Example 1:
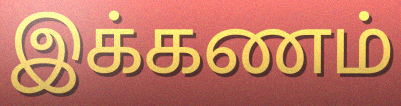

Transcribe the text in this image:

இக்கணம்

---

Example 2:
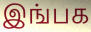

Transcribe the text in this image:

இங்பக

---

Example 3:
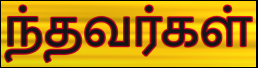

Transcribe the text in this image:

ந்தவர்கள்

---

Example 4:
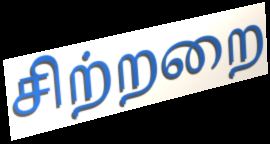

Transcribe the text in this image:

சிற்றறை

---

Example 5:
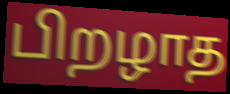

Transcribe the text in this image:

பிறழாத